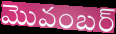
మొవంబర్